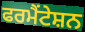
ਫਰਮੈਂਟੇਸ਼ਨ